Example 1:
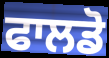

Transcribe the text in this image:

ਫਾਲਡੋ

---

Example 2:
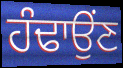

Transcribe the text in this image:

ਹੰਢਾਉਂਣ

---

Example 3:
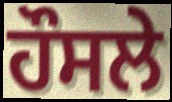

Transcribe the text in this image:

ਹੌਸਲੇ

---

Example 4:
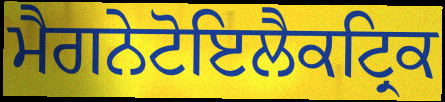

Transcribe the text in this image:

ਮੈਗਨੇਟੋਇਲੈਕਟ੍ਰਿਕ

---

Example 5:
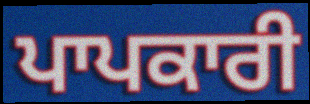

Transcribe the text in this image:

ਪਾਪਕਾਰੀ